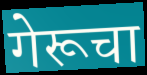
गेरूचा